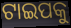
ଟାଇପକୁ